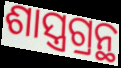
ଶାସ୍ତ୍ରଗ୍ରନ୍ଥ